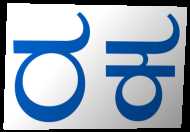
ರಕ